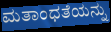
ಮತಾಂಧತೆಯನ್ನು